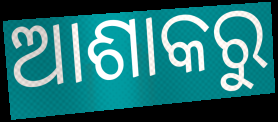
ଆଶାକରୁ